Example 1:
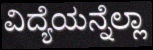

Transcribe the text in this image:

ವಿದ್ಯೆಯನ್ನೆಲ್ಲಾ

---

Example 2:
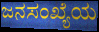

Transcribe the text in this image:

ಜನಸಂಖ್ಯೆಯ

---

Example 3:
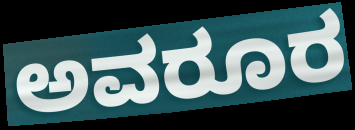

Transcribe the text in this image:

ಅವರೂರ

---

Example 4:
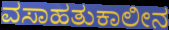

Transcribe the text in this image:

ವಸಾಹತುಕಾಲೀನ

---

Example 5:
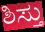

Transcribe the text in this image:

ಶಿಸ್ತು